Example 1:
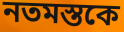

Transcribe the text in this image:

নতমস্তকে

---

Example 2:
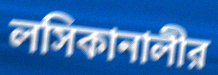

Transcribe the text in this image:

লসিকানালীর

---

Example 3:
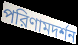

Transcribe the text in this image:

পরিণামদর্শন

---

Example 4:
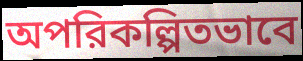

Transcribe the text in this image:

অপরিকল্পিতভাবে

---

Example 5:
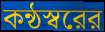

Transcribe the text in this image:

কন্ঠস্বরের